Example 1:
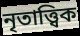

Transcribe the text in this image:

নৃতাত্ত্বিক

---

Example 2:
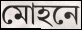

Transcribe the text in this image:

মোহনে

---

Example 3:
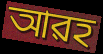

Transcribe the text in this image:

আৱহ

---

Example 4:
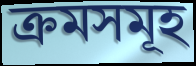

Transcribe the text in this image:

ক্ৰমসমূহ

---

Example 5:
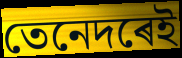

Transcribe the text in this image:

তেনেদৰেই